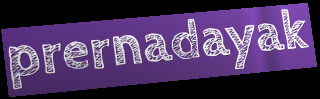
prernadayak